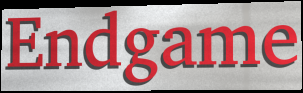
Endgame